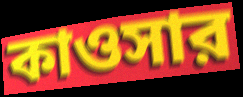
কাওসার